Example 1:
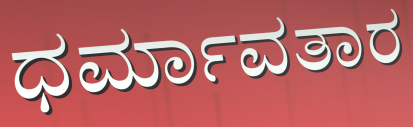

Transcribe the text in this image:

ಧರ್ಮಾವತಾರ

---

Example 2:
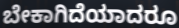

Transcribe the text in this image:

ಬೇಕಾಗಿದೆಯಾದರೂ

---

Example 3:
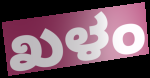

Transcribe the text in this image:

ಖಳಂ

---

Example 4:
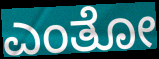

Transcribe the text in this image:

ಎಂತೋ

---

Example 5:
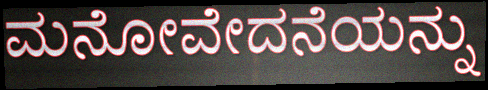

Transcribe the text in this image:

ಮನೋವೇದನೆಯನ್ನು